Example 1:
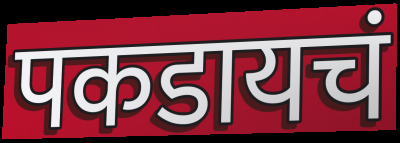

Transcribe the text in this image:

पकडायचं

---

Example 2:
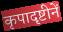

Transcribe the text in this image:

कृपादृष्टीनें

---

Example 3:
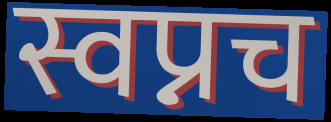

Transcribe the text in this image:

स्वप्नच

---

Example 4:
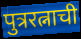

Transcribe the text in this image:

पुत्ररत्नाची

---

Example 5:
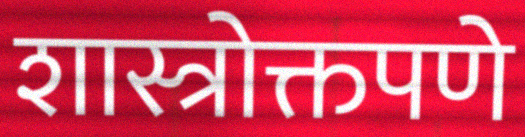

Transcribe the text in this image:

शास्त्रोक्तपणे